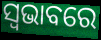
ସ୍ବଭାବରେ